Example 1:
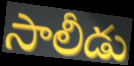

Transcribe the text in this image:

సాలీడు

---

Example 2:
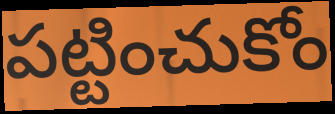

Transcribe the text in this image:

పట్టించుకోం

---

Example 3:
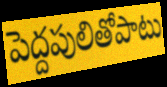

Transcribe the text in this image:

పెద్దపులితోపాటు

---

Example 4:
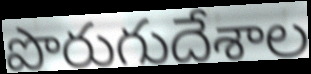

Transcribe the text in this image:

పొరుగుదేశాల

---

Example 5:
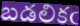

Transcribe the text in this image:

బడలికఁ